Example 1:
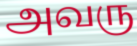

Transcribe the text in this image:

அவரு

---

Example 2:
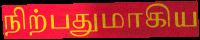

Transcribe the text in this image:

நிற்பதுமாகிய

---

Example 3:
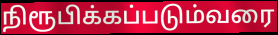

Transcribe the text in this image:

நிரூபிக்கப்படும்வரை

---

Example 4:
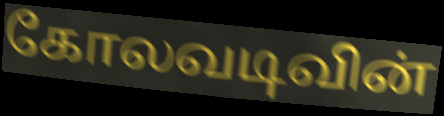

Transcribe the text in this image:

கோலவடிவின்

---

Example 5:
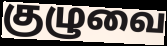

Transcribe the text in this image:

குழுவை